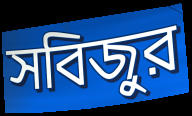
সবিজুর